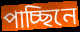
পাচ্ছিনে